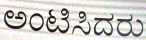
ಅಂಟಿಸಿದರು